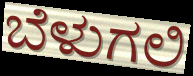
ಬೆಳುಗಲಿ